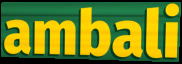
ambali